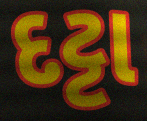
દટ્ટા